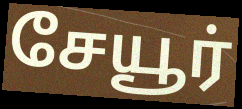
சேயூர்